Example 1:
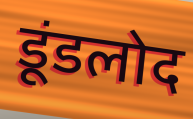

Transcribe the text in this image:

डूंडलोद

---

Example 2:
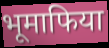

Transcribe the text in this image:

भूमाफिया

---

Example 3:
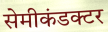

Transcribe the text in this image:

सेमीकंडक्टर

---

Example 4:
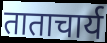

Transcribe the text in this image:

ताताचार्य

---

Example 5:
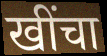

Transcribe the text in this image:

खींचा